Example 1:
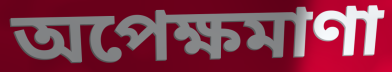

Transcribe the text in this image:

অপেক্ষমাণা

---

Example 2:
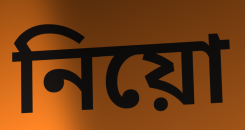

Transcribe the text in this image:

নিয়ো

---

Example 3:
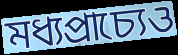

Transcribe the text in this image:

মধ্যপ্রাচ্যেও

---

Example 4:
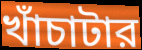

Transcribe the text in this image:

খাঁচাটার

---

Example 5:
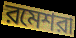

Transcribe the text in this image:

রমেশরা